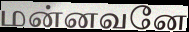
மன்னவனே